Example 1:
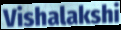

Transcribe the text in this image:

Vishalakshi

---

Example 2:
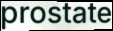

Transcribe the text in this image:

prostate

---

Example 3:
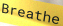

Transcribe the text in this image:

Breathe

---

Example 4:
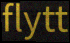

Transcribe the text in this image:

flytt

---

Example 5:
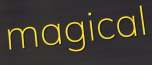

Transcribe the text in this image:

magical